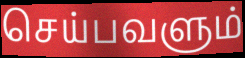
செய்பவளும்